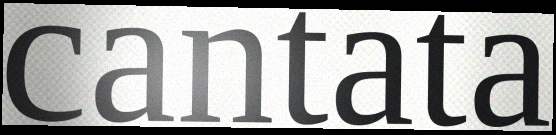
cantata